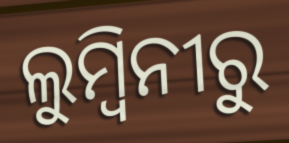
ଲୁମ୍ବିନୀରୁ